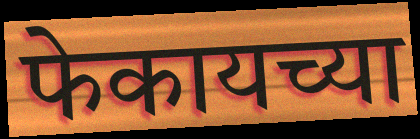
फेकायच्या